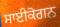
ਸਾਈਕੋਗਨ